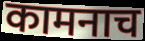
कामनाच